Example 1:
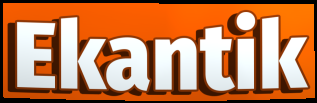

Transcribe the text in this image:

Ekantik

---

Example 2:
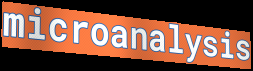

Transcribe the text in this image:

microanalysis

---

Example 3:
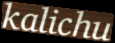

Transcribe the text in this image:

kalichu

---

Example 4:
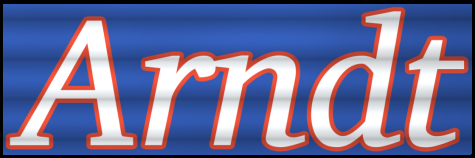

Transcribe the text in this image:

Arndt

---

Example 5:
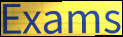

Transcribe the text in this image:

Exams